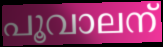
പൂവാലന്